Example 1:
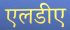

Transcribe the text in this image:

एलडीए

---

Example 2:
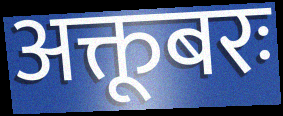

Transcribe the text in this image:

अक्तूबरः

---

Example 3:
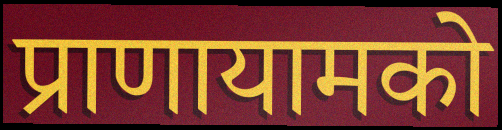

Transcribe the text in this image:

प्राणायामको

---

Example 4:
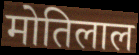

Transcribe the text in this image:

मोतिलाल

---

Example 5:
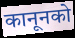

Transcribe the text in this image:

कानूनको